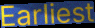
Earliest